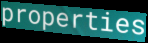
properties